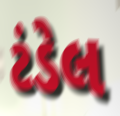
ટંડેલ